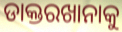
ଡାକ୍ତରଖାନାକୁ